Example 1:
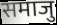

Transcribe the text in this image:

समाजु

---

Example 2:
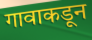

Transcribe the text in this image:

गावाकडून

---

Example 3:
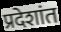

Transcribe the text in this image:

प्रदेशांत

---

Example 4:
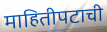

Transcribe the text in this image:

माहितीपटाची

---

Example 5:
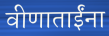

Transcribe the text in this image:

वीणाताईंना